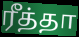
ரீத்தா